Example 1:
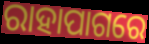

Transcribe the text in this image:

ରାହାପାଗରେ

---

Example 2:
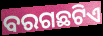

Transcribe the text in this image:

ବରଗଛଟିଏ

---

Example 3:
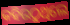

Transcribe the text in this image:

କହିଉଠୁଥିଲେ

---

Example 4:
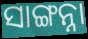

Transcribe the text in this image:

ସାଙ୍ଗନ୍ନା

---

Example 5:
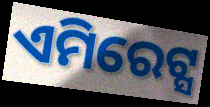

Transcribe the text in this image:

ଏମିରେଟ୍ସ